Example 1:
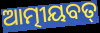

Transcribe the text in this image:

ଆତ୍ମୀୟବତ୍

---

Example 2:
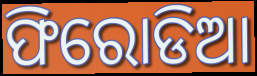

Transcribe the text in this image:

ଫିରୋଡିଆ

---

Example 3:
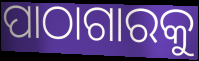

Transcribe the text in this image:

ପାଠାଗାରକୁ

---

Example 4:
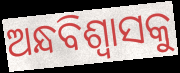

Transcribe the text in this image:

ଅନ୍ଧବିଶ୍ୱାସକୁ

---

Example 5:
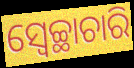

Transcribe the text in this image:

ସ୍ଵେଚ୍ଛାଚାରି